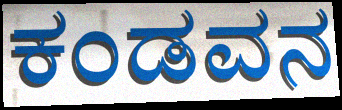
ಕಂಡವನ